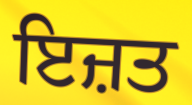
ਇਜ਼ਤ